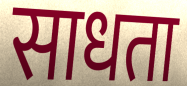
साधता